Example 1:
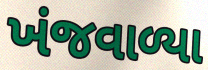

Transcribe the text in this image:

ખંજવાળ્યા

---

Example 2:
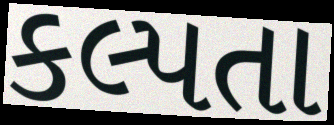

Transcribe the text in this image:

કલ્પતા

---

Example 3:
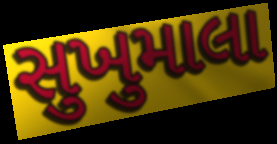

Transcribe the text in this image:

સુખુમાલા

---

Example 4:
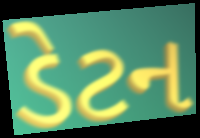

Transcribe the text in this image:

ડેટન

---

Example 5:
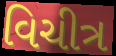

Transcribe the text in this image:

વિચીત્ર